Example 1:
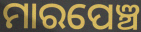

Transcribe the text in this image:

ମାରପେଞ୍ଚ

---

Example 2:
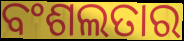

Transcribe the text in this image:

ବଂଶଲତାର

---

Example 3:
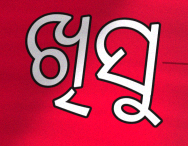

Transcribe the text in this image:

ଖିସୁ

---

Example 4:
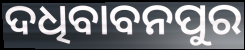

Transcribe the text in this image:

ଦଧିବାବନପୁର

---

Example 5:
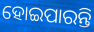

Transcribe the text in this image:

ହୋଇପାରନ୍ତି